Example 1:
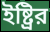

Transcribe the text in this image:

ইষ্ট্রির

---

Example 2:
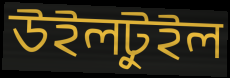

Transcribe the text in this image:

উইলটুইল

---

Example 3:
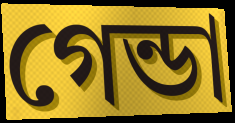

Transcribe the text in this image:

গেন্ডা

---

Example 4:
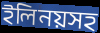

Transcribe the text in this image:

ইলিনয়সহ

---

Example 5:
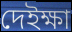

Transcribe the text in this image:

দেইক্ষা